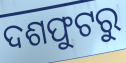
ଦଶଫୁଟରୁ